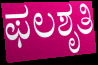
ಫಲಶೃತಿ